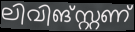
ലിവിങ്സ്റ്റണ്